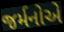
જર્મનોએ